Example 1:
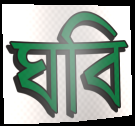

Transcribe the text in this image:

ঘবি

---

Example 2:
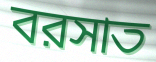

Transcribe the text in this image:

বরসাত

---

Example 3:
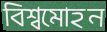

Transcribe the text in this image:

বিশ্বমোহন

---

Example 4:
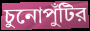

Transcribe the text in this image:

চুনোপুঁটির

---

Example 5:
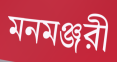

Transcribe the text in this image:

মনমঞ্জরী